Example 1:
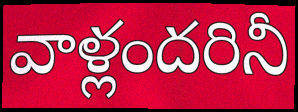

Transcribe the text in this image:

వాళ్లందరినీ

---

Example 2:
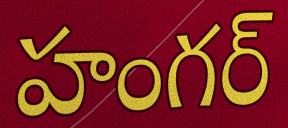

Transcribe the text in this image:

హంగర్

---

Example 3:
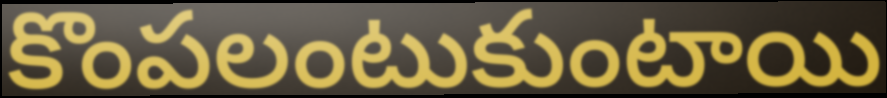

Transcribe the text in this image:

కొంపలంటుకుంటాయి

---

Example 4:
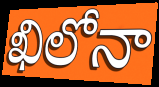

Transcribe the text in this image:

ఖిలోనా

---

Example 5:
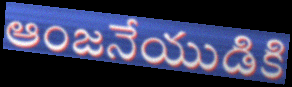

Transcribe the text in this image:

ఆంజనేయుడికి